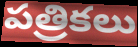
పత్రికలు